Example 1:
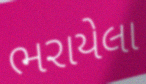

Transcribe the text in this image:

ભરાયેલા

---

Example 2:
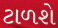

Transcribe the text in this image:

ટાળશે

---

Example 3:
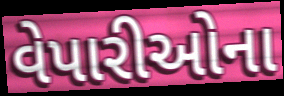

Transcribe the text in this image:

વેપારીઓના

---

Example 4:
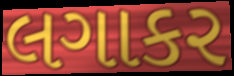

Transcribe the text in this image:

લગાકર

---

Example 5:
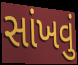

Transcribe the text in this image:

સાંખવું